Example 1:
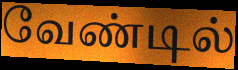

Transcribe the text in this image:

வேண்டில்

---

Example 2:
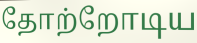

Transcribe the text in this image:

தோற்றோடிய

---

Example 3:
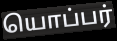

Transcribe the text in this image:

யொப்பர்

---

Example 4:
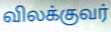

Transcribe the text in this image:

விலக்குவர்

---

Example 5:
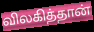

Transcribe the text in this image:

விலகித்தான்